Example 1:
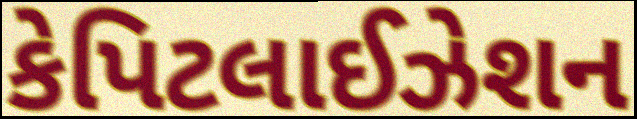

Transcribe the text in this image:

કેપિટલાઈઝેશન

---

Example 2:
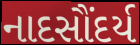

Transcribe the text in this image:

નાદસૌંદર્ય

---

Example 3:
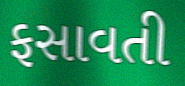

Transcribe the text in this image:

ફસાવતી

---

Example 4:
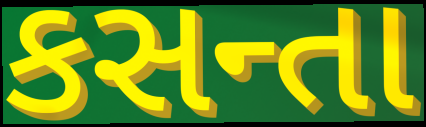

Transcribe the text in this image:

કસન્તા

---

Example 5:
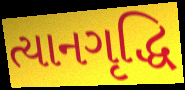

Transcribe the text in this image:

ત્યાનગૃદ્ધિ